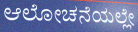
ಆಲೋಚನೆಯಲ್ಲೇ